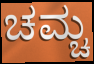
ಚಮ್ಚ